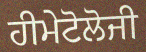
ਹੀਮੇਟੋਲੋਜੀ